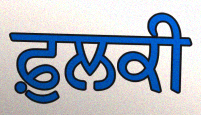
ਫ਼ੁਲਕੀ